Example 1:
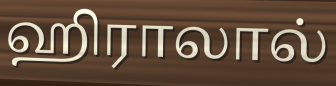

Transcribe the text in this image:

ஹிராலால்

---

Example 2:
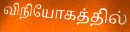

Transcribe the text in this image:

விநியோகத்தில்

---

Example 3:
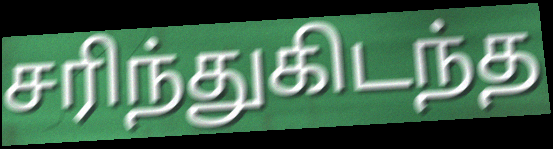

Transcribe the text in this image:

சரிந்துகிடந்த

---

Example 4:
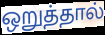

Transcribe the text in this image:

ஒறுத்தால்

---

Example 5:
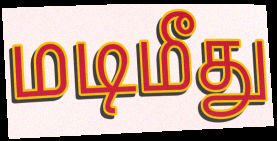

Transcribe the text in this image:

மடிமீது